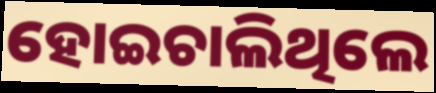
ହୋଇଚାଲିଥିଲେ